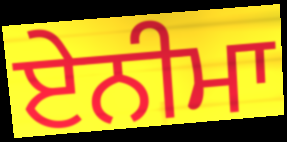
ਏਨੀਮਾ